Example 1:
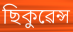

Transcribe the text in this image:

ছিকুৱেন্স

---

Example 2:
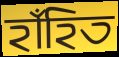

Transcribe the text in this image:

হাঁহিত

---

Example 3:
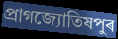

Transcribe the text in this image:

প্ৰাগজ্যোতিষপুৰ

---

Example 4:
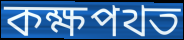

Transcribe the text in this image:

কক্ষপথত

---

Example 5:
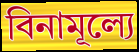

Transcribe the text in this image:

বিনামূল্যে